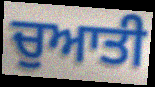
ਚੁਆਤੀ